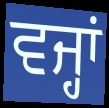
ਵਜ੍ਹਾਂ